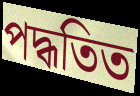
পদ্ধতিত